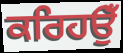
ਕਰਿਹਉਁ